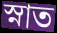
স্নাত